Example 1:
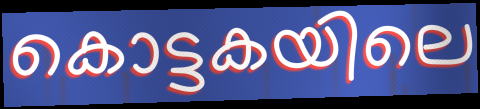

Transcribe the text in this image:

കൊട്ടകയിലെ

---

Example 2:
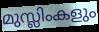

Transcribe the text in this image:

മുസ്ലിംകളും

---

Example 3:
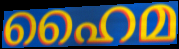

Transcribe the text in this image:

ഹൈമ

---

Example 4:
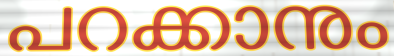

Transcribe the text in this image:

പറക്കാനും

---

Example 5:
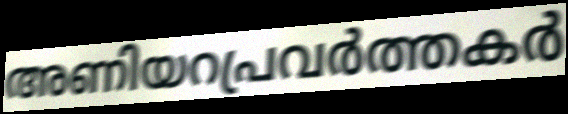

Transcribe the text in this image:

അണിയറപ്രവർത്തകർ